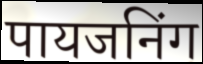
पायजनिंग